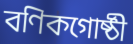
বণিকগোষ্ঠী